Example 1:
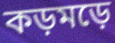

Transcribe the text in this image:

কড়মড়ে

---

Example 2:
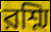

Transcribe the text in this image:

রশ্মি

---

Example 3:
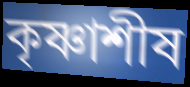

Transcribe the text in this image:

কৃষ্ণাশীষ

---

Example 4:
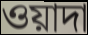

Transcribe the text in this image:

ওয়াদা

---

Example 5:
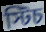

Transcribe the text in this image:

স্টিচ